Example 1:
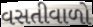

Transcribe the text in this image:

વસતીવાળો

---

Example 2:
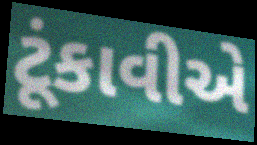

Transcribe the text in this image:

ટૂંકાવીએ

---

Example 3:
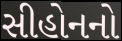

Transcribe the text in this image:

સીહોનનો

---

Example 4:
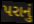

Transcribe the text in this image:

પરાનું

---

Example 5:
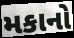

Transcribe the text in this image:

મકાનો